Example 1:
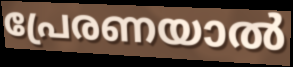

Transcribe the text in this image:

പ്രേരണയാൽ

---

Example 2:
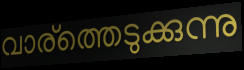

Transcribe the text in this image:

വാര്ത്തെടുക്കുന്നു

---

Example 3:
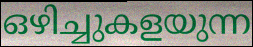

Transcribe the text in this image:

ഒഴിച്ചുകളയുന്ന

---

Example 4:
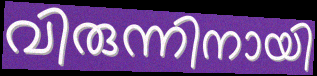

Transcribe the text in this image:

വിരുന്നിനായി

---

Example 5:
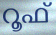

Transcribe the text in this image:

റൂഫ്